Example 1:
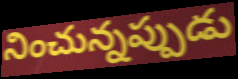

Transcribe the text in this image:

నించున్నప్పుడు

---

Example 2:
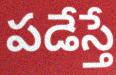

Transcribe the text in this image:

పడేస్తే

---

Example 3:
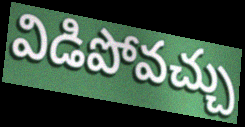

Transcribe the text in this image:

విడిపోవచ్చు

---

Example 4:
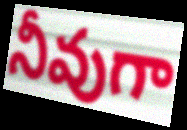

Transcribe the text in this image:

నీవుగా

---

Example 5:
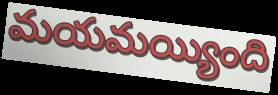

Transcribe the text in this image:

మయమయ్యింది